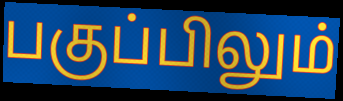
பகுப்பிலும்